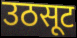
उठसूट